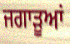
ਜਗਾੜੂਆਂ